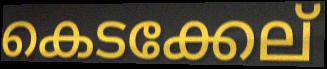
കെടക്കേല്